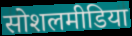
सोशलमीडिया